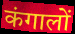
कंगालों